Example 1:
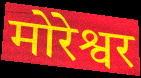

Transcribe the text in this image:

मोरेश्वर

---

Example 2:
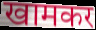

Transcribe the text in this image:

खामकर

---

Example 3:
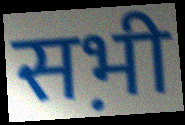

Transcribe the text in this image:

सभ़ी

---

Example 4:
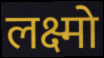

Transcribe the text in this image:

लक्ष्मो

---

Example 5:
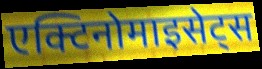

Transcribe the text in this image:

एक्टिनोमाइसेट्स